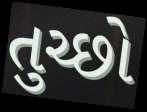
તુચ્છો